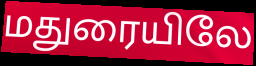
மதுரையிலே